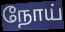
நோய்